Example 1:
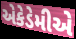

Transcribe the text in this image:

એકેડેમીએ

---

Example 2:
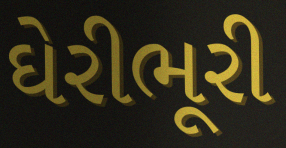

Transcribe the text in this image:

ઘેરીભૂરી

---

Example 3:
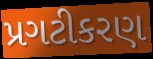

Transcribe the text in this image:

પ્રગટીકરણ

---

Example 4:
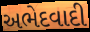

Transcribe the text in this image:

અભેદવાદી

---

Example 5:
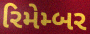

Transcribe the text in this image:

રિમેમ્બર